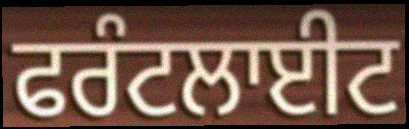
ਫਰੰਟਲਾਈਟ